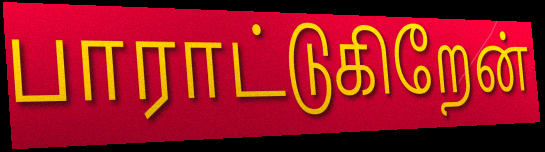
பாராட்டுகிறேன்